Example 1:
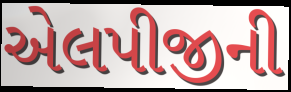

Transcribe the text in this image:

એલપીજીની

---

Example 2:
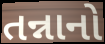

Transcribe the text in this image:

તન્નાનો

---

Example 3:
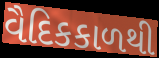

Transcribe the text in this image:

વૈદિકકાળથી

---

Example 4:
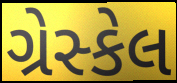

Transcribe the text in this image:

ગ્રેસ્કેલ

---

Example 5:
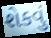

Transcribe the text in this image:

શેકવું